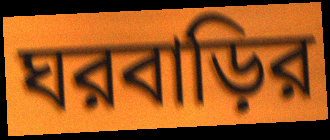
ঘরবাড়ির